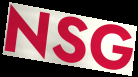
NSG